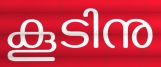
കൂടിനു